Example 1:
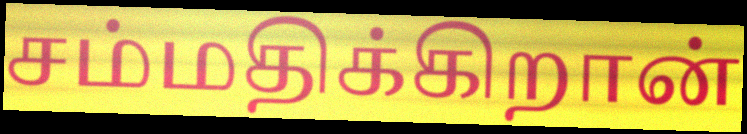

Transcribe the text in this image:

சம்மதிக்கிறான்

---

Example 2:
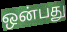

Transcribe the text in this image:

ஒன்பது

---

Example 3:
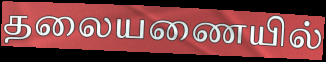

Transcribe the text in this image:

தலையணையில்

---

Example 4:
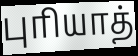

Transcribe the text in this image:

புரியாத்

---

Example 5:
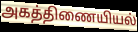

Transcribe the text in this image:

அகத்திணையியல்